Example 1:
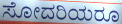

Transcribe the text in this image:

ಸೋದರಿಯರೂ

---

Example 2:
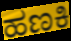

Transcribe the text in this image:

ಹಣಕಿ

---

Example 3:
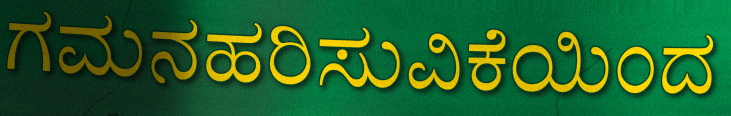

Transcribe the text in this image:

ಗಮನಹರಿಸುವಿಕೆಯಿಂದ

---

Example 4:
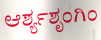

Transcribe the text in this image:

ಆರ್ಶ್ಯಶೃಂಗಿಂ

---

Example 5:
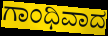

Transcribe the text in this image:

ಗಾಂಧಿವಾದ